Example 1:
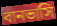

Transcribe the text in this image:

বানভাসি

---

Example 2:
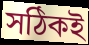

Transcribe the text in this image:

সঠিকই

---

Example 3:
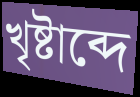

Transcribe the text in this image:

খৃষ্টাব্দে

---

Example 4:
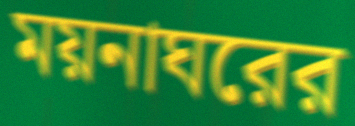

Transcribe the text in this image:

ময়নাঘরের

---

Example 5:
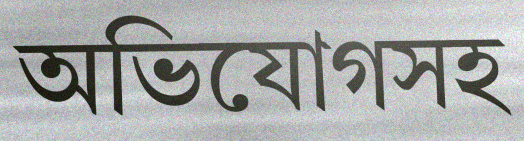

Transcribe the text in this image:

অভিযোগসহ